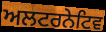
ਅਲਟਰਨੇਟਿਵ